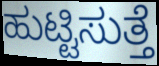
ಹುಟ್ಟಿಸುತ್ತೆ